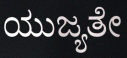
ಯುಜ್ಯತೇ